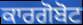
ਕਾਰਗੋਬੋਟ